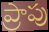
ప్రాపు